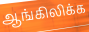
ஆங்கிலிக்க